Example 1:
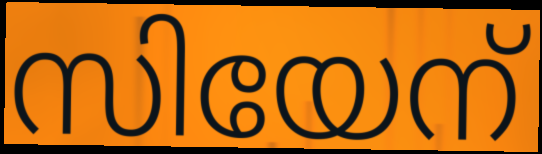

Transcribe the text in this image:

സിയേന്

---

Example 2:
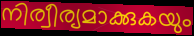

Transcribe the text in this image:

നിര്വീര്യമാക്കുകയും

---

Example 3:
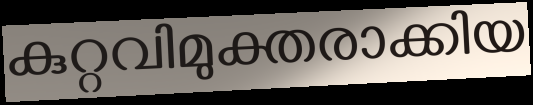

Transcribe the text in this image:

കുറ്റവിമുക്തരാക്കിയ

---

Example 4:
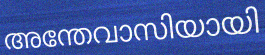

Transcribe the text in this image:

അന്തേവാസിയായി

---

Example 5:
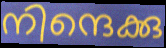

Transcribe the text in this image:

നിന്ദെക്കു